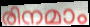
രിനമാം